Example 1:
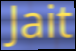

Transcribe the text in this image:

Jait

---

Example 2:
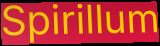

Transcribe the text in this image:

Spirillum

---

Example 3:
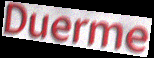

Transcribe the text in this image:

Duerme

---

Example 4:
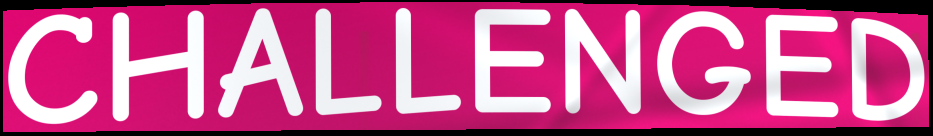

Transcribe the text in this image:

CHALLENGED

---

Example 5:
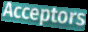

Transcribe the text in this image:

Acceptors